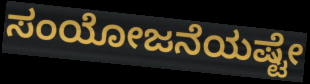
ಸಂಯೋಜನೆಯಷ್ಟೇ